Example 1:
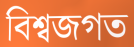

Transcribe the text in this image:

বিশ্বজগত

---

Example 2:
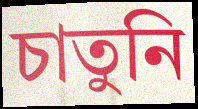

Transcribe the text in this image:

চাতুনি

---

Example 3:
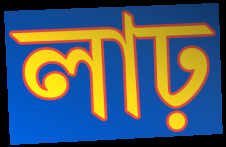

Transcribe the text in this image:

লাঢ়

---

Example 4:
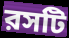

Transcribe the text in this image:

রসটি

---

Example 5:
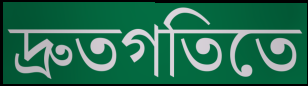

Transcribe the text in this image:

দ্রুতগতিতে